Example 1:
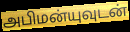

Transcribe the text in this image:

அபிமன்யுவுடன்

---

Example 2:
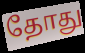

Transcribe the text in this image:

தோது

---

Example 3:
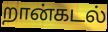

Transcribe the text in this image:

றான்கடல்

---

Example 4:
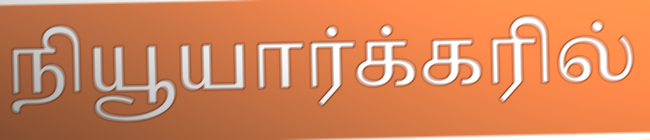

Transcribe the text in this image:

நியூயார்க்கரில்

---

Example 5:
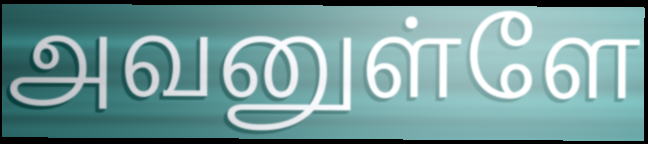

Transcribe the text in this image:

அவனுள்ளே